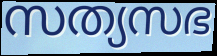
സത്യസഭ